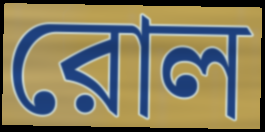
রোল